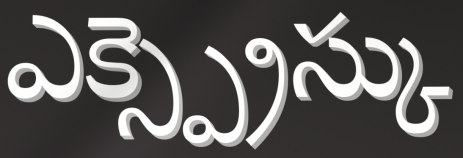
ఎక్స్ప్రెస్కు